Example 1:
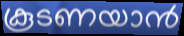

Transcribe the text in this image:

കൂടണയാൻ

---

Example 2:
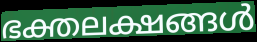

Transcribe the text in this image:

ഭക്തലക്ഷങ്ങൾ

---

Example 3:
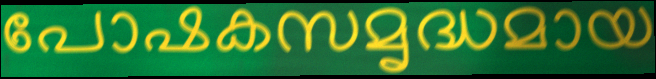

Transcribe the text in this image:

പോഷകസമൃദ്ധമായ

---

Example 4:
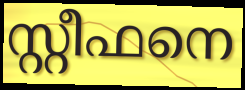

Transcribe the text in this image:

സ്റ്റീഫനെ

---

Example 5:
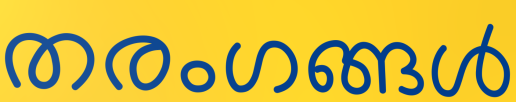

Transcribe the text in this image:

തരംഗങ്ങൾ